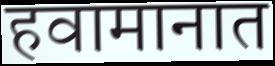
हवामानात